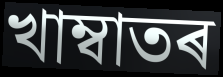
খাম্বাতৰ